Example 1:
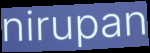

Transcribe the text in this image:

nirupan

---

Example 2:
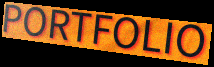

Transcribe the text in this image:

PORTFOLIO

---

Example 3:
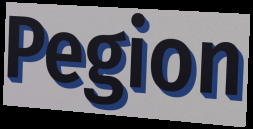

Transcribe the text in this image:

Pegion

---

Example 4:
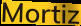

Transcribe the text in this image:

Mortiz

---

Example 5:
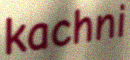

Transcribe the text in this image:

kachni